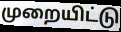
முறையிட்டு